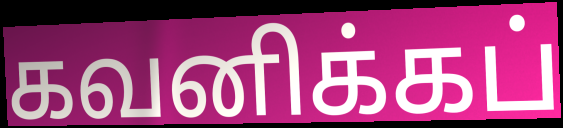
கவனிக்கப்